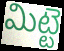
మిట్టె